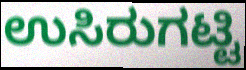
ಉಸಿರುಗಟ್ಟಿ